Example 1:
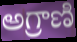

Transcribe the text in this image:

అగ్రాణి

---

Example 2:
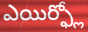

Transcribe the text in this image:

ఎయిర్ఫ్లో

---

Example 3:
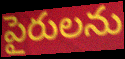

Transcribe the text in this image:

పైరులను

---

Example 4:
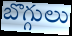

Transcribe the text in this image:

బొగ్గులు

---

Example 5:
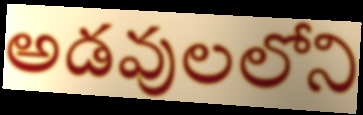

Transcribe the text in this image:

అడవులలోని